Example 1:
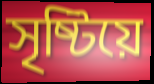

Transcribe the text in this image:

সৃষ্টিয়ে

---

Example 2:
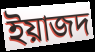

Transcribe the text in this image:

ইয়াজদ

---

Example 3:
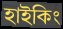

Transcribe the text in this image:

হাইকিং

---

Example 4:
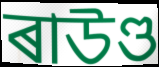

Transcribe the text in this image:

ৰাউণ্ড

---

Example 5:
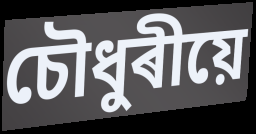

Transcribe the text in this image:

চৌধুৰীয়ে